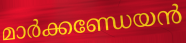
മാർക്കണ്ഡേയൻ